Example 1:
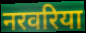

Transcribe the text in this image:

नरवरिया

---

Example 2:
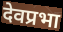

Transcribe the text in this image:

देवप्रभा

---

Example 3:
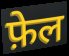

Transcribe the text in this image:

फ़ेल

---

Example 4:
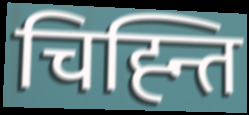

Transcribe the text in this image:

चिह्न्ति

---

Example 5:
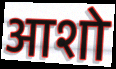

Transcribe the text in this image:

आशो